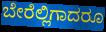
ಬೇರೆಲ್ಲಿಗಾದರೂ